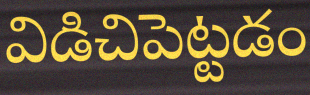
విడిచిపెట్టడం